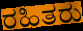
ರಹಿತರು